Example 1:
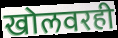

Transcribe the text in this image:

खोलवरही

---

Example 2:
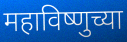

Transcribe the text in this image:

महाविष्णुच्या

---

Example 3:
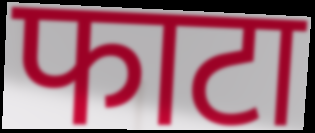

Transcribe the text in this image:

फाटा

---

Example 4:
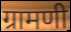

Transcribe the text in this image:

ग्रामणी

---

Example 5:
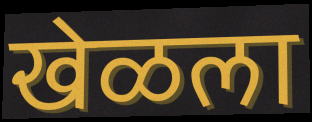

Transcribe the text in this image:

खेळला